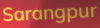
Sarangpur